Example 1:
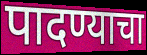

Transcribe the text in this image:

पादण्याचा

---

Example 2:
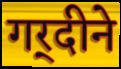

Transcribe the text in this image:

गर्दीने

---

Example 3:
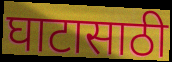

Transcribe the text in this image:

घाटासाठी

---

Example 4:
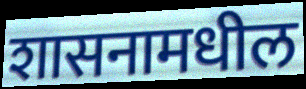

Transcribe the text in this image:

शासनामधील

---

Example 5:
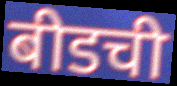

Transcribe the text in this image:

बीडची